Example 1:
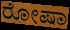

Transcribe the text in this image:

ರೋಷಾ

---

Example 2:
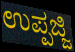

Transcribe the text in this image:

ಉಪ್ಪಜ್ಜಿ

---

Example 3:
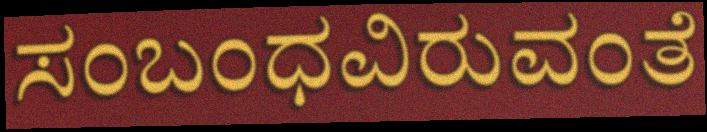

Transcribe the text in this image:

ಸಂಬಂಧವಿರುವಂತೆ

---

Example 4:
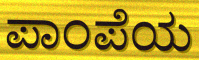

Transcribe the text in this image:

ಪಾಂಪೆಯ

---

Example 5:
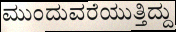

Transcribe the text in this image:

ಮುಂದುವರೆಯುತ್ತಿದ್ದು